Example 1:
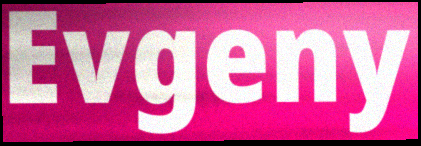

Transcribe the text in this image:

Evgeny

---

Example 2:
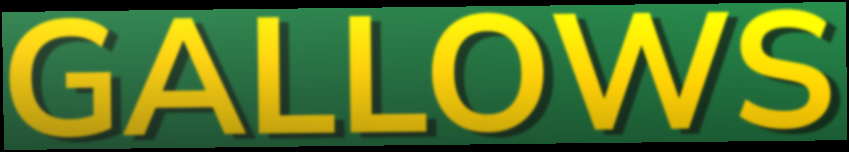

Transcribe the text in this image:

GALLOWS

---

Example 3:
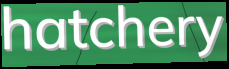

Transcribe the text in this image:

hatchery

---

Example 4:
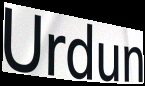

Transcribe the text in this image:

Urdun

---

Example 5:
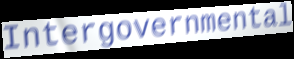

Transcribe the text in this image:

Intergovernmental